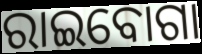
ରାଇବୋଗା